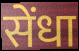
सेंधा